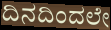
ದಿನದಿಂದಲೇ